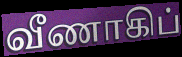
வீணாகிப்